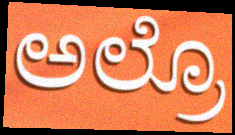
ಅಲ್ರೊ